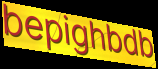
bepighbdb